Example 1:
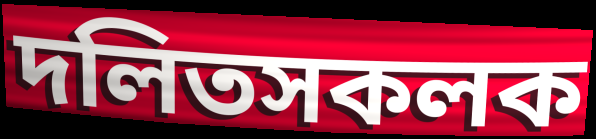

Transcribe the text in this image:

দলিতসকলক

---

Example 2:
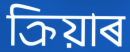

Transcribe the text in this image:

ক্ৰিয়াৰ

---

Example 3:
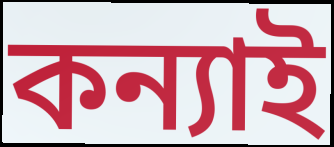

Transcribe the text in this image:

কন্যাই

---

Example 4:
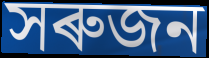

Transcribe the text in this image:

সৰুজন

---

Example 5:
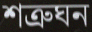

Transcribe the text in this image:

শত্ৰুঘন